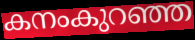
കനംകുറഞ്ഞ